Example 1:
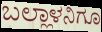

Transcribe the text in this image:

ಬಲ್ಲಾಳನಿಗೂ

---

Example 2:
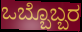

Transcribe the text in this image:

ಒಬ್ಬೊಬ್ಬರ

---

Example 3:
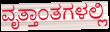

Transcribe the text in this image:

ವೃತ್ತಾಂತಗಳಲ್ಲಿ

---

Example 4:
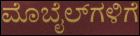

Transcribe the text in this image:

ಮೊಬೈಲ್‌ಗಳಿಗೆ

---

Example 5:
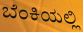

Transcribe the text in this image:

ಬೆಂಕಿಯಲ್ಲಿ